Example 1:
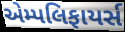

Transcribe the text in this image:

એમ્પલિફાયર્સ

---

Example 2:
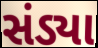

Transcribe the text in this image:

સંડ્યા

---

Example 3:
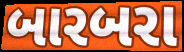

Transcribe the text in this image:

બારબરા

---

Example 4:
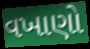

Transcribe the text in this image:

વખાણો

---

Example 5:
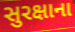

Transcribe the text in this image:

સુરક્ષાના